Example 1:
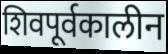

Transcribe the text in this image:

शिवपूर्वकालीन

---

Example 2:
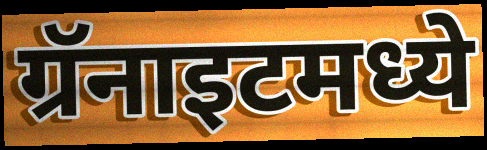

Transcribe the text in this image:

ग्रॅनाइटमध्ये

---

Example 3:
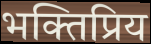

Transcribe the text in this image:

भक्तिप्रिय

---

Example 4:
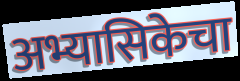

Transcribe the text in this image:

अभ्यासिकेचा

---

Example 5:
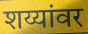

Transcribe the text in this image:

शय्यांवर